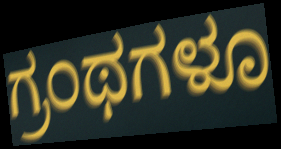
ಗ್ರಂಥಗಳೂ